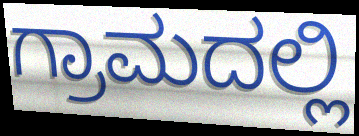
ಗ್ರಾಮದಲ್ಲಿ